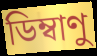
ডিম্বাণু